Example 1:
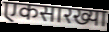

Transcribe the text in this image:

एकसारख्या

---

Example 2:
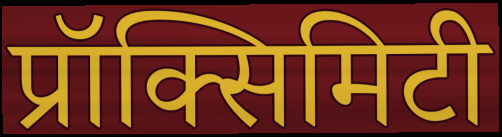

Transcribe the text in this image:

प्रॉक्सिमिटी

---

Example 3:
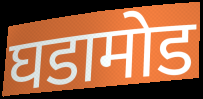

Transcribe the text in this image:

घडामोड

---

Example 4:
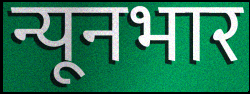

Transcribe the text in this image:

न्यूनभार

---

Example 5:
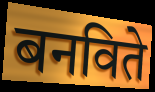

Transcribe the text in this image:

बनविते